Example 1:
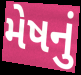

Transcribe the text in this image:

મેષનું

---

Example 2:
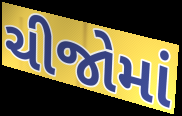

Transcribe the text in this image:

ચીજોમાં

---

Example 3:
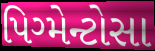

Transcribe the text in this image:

પિગ્મેન્ટોસા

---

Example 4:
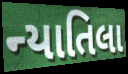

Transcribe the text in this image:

ન્યાતિલા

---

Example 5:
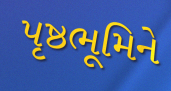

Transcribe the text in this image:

પૃષ્ઠભૂમિને